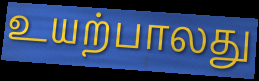
உயற்பாலது